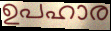
ഉപഹാര